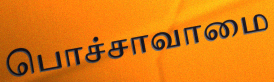
பொச்சாவாமை